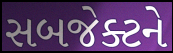
સબજેક્ટને